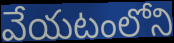
వేయటంలోని